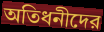
অতিধনীদের